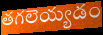
తగలెయ్యడం